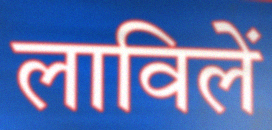
लाविलें